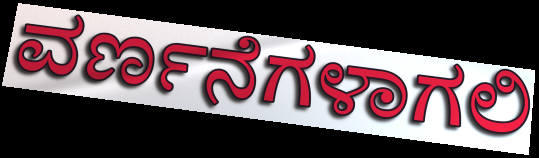
ವರ್ಣನೆಗಳಾಗಲಿ